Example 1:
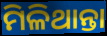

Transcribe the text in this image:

ମିଳିଥାନ୍ତା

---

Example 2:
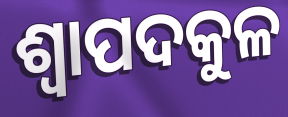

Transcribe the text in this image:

ଶ୍ୱାପଦକୁଳ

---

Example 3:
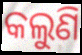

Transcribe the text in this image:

କଲୁଣି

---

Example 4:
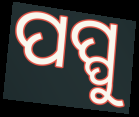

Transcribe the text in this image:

ପପ୍ପୁ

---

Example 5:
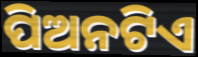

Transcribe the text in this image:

ପିଅନଟିଏ